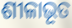
ଶୀଳାଭୂତ